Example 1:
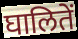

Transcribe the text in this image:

घालितें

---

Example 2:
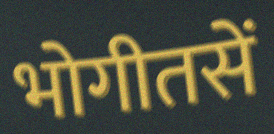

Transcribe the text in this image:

भोगीतसें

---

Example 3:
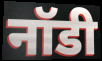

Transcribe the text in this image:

नॉडी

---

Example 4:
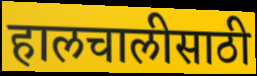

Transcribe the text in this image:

हालचालीसाठी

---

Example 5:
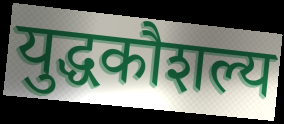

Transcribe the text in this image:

युद्धकौशल्य